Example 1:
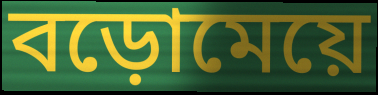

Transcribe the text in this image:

বড়োমেয়ে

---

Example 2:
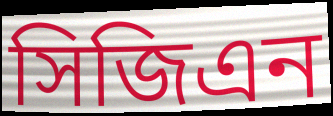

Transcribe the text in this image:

সিজিএন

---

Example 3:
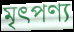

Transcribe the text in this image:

মৃৎপণ্য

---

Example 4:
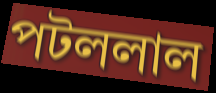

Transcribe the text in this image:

পটললাল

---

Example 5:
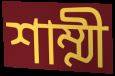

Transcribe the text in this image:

শাম্মী